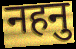
नहनु